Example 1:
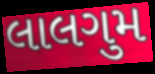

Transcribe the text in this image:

લાલગુમ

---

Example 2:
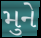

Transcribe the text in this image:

મુને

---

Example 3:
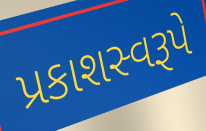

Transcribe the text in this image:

પ્રકાશસ્વરૂપે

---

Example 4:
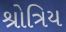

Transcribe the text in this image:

શ્રોત્રિય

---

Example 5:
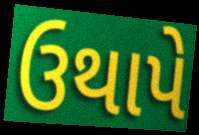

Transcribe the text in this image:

ઉથાપે